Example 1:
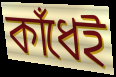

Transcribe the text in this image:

কাঁধেই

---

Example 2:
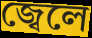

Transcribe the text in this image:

জ্বেলে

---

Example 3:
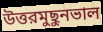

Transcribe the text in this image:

উত্তরমুছুনভাল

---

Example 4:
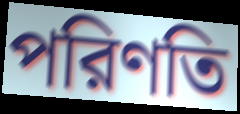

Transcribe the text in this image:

পরিণতি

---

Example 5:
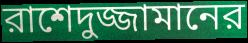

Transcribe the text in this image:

রাশেদুজ্জামানের